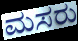
ಮಸರು